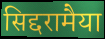
सिद्दरामैया